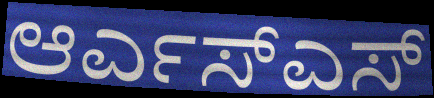
ಆರ್ಎಸ್ಎಸ್